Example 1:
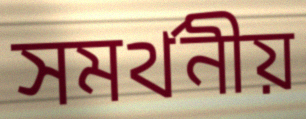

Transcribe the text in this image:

সমর্থনীয়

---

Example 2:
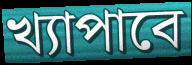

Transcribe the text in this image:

খ্যাপাবে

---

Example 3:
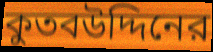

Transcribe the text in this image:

কুতবউদ্দিনের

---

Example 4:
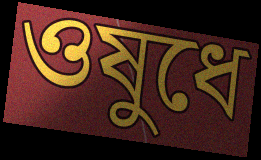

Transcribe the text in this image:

ওষুধে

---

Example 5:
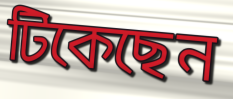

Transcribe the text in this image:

টিকেছেন